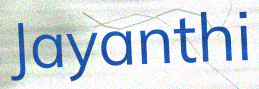
Jayanthi